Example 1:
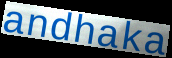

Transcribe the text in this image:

andhaka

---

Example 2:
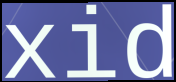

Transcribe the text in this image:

xid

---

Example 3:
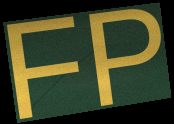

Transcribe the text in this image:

FP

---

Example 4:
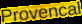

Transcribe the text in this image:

Provencal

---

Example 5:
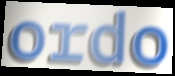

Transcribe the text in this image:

ordo